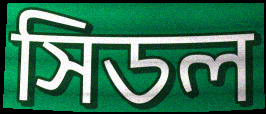
সিডল